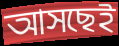
আসছেই